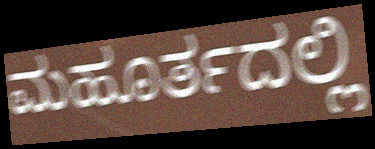
ಮಹೂರ್ತದಲ್ಲಿ